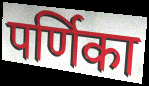
पर्णिका